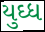
યુઘ્ધ